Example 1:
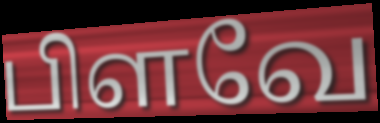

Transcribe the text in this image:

பிளவே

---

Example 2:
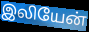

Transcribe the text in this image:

இலியேன்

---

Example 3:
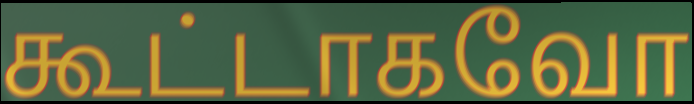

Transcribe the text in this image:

கூட்டாகவோ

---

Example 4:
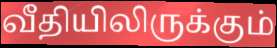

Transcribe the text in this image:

வீதியிலிருக்கும்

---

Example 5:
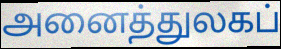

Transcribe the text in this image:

அனைத்துலகப்